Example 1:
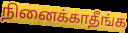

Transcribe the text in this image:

நினைக்காதீங்க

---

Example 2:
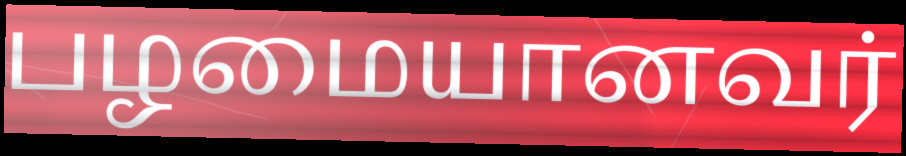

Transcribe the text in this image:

பழமையானவர்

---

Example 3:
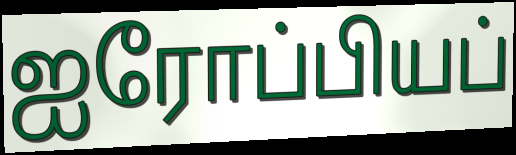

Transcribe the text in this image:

ஐரோப்பியப்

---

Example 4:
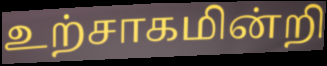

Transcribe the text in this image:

உற்சாகமின்றி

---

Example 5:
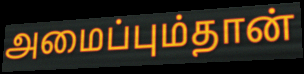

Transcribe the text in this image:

அமைப்பும்தான்